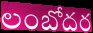
లంబోదర